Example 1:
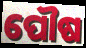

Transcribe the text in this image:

ପୌଷ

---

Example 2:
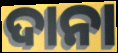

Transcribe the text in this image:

ଦାନା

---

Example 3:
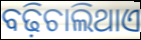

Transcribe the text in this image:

ବଢ଼ିଚାଲିଥାଏ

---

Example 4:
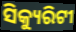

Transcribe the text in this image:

ସିକ୍ୟୁରିଟୀ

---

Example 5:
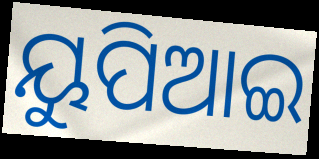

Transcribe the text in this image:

ୟୁପିଆଇ